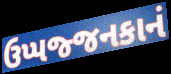
ઉપ્પજ્જનકાનં